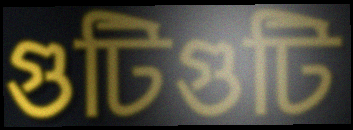
গুটিগুটি